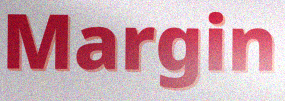
Margin